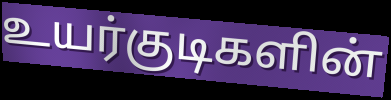
உயர்குடிகளின்